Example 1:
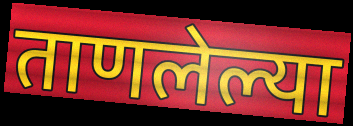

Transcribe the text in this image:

ताणलेल्या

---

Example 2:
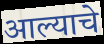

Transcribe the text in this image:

आल्याचे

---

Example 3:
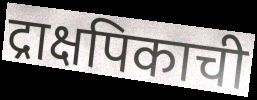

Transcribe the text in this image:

द्राक्षपिकाची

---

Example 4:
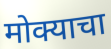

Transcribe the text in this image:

मोक्याचा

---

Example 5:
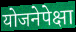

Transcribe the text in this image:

योजनेपेक्षा